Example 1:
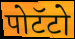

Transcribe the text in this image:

पोटॅटो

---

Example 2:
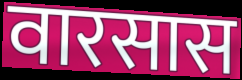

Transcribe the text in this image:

वारसास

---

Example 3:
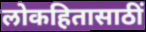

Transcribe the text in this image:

लोकहितासाठीं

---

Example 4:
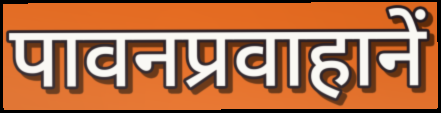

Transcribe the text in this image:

पावनप्रवाहानें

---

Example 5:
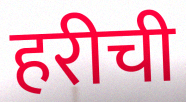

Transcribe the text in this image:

हरीची